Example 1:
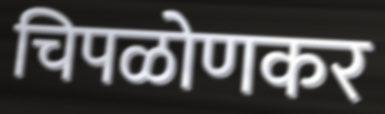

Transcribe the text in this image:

चिपळोणकर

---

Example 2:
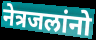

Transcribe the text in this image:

नेत्रजलांनो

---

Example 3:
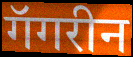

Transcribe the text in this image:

गॅगरीन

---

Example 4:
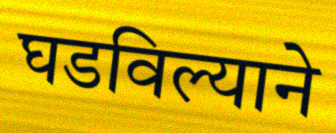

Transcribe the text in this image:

घडविल्याने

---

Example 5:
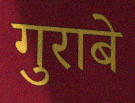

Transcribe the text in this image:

गुराबे